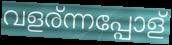
വളര്ന്നപ്പോള്